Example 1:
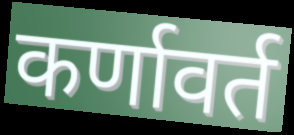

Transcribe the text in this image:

कर्णावर्त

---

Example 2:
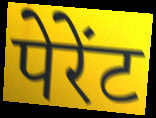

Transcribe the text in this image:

पेरेंट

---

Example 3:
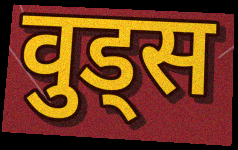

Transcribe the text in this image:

वुड्स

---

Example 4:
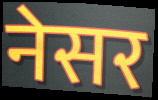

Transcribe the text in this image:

नेसर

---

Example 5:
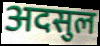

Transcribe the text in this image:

अदसुल